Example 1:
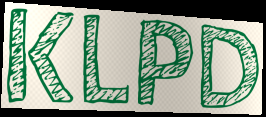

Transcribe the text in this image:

KLPD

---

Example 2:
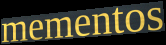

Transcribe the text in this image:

mementos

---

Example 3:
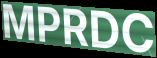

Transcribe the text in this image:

MPRDC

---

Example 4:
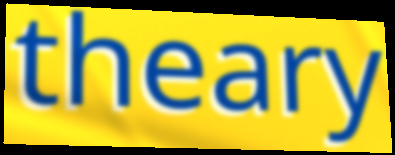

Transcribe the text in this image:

theary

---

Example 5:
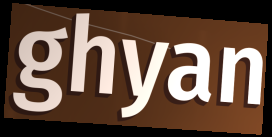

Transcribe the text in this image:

ghyan